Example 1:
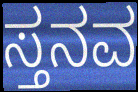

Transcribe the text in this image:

ಸ್ತನವ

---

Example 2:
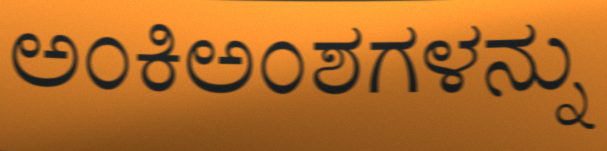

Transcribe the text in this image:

ಅಂಕಿಅಂಶಗಳನ್ನು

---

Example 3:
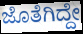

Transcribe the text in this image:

ಜೊತೆಗಿದ್ದೇ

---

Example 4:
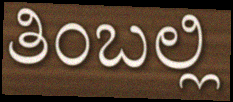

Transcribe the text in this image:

ತಿಂಬಲ್ಲಿ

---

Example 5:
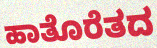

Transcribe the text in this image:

ಹಾತೊರೆತದ